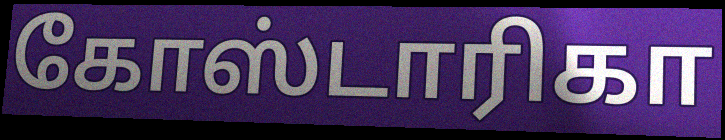
கோஸ்டாரிகா